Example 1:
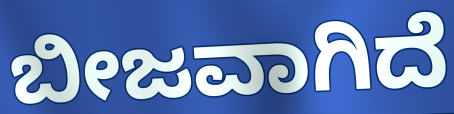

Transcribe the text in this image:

ಬೀಜವಾಗಿದೆ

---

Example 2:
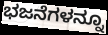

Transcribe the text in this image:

ಭಜನೆಗಳನ್ನೂ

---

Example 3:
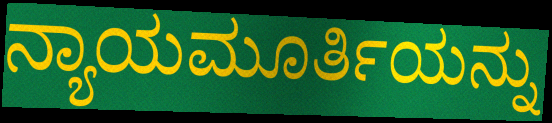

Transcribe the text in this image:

ನ್ಯಾಯಮೂರ್ತಿಯನ್ನು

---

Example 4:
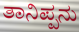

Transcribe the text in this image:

ತಾನಿಪ್ಪನು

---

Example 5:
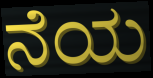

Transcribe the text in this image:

ನೆಯ